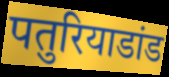
पतुरियाडांड